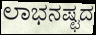
ಲಾಭನಷ್ಟದ